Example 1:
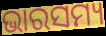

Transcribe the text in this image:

ଭାରସମ୍ୟ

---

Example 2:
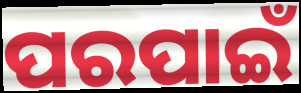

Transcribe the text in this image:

ପରପାଇଁ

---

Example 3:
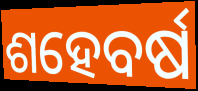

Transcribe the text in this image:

ଶହେବର୍ଷ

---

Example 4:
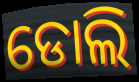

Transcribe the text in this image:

ଡୋଲି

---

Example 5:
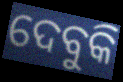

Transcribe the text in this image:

ଦେବୁକି